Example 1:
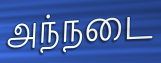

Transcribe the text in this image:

அந்நடை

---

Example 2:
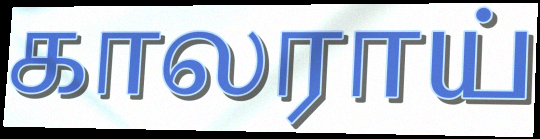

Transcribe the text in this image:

காலராய்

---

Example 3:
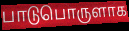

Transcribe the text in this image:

பாடுபொருளாக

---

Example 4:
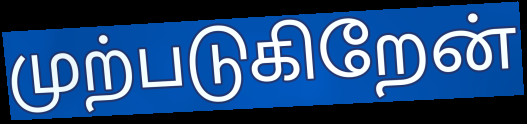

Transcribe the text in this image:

முற்படுகிறேன்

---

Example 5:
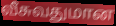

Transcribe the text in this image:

வீசுவதுமான